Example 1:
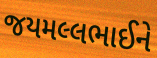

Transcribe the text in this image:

જયમલ્લભાઈને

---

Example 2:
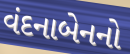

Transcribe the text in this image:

વંદનાબેનનો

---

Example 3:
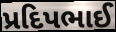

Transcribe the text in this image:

પ્રદિપભાઈ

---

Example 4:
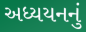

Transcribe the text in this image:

અધ્યયનનું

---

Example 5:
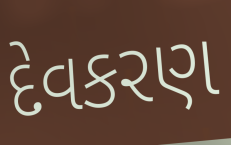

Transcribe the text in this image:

દેવકરણ